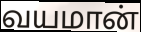
வயமான்